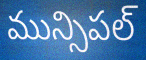
మున్సిపల్